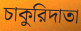
চাকুরিদাতা